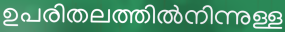
ഉപരിതലത്തിൽനിന്നുള്ള